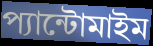
প্যান্টোমাইম